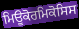
ਮਿਊਕੋਰਮਿਕੋਸਿਸ